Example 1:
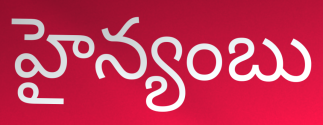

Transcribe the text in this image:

హైన్యంబు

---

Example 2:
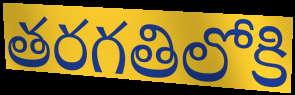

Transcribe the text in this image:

తరగతిలోకి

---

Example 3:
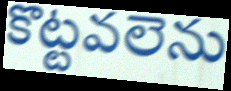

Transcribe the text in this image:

కొట్టవలెను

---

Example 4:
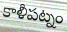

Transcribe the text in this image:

కాళీపట్నం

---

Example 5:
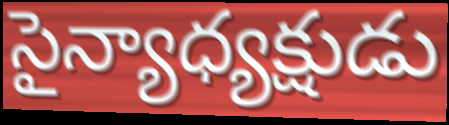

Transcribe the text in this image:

సైన్యాధ్యక్షుడు